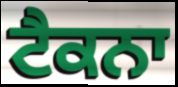
ਟੈਕਨਾ